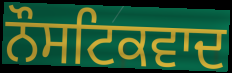
ਨੌਸਟਿਕਵਾਦ